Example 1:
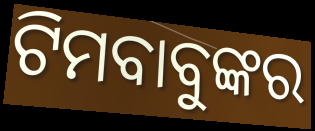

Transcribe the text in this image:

ଟିମବାବୁଙ୍କର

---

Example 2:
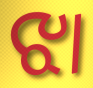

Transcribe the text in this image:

ଝା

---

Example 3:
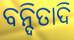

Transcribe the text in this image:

ବନ୍ଦିତାଦି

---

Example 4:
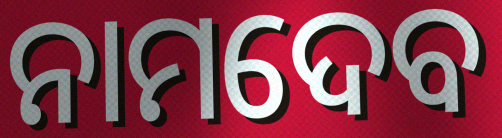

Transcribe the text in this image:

ନାମଦେବ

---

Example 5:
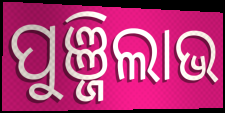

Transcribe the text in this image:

ପୁଞ୍ଜିଲାଭ